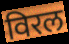
विरल